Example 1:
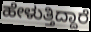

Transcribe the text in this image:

ಹೇಳುತ್ತಿದ್ದಾರೆ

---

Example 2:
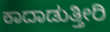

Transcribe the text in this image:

ಕಾದಾಡುತ್ತೀರಿ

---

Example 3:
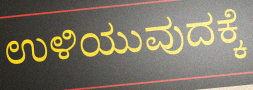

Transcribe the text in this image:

ಉಳಿಯುವುದಕ್ಕೆ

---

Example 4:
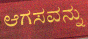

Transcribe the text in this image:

ಆಗಸವನ್ನು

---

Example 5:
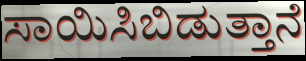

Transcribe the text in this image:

ಸಾಯಿಸಿಬಿಡುತ್ತಾನೆ